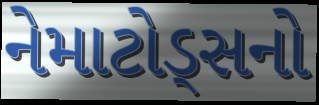
નેમાટોડ્સનો